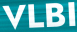
VLBI